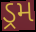
ડ્રમ